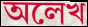
অলেখ